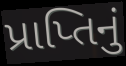
પ્રાપ્તિનું